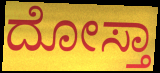
ದೋಸ್ತಾ